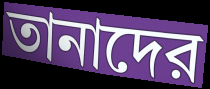
তানাদের